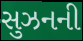
સુઝનની